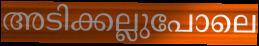
അടിക്കല്ലുപോലെ